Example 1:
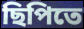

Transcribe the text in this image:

ছিপিতে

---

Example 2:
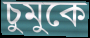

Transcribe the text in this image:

চুমুকে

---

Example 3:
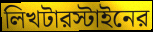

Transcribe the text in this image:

লিখটারস্টাইনের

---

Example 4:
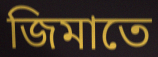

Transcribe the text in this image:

জিমাতে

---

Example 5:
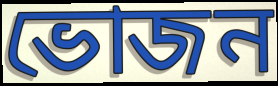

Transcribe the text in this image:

ভোজন